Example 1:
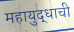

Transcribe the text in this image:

महायुद्धाची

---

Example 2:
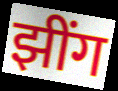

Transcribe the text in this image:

झींग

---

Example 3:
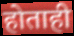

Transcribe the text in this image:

होताही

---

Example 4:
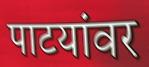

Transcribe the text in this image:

पाटयांवर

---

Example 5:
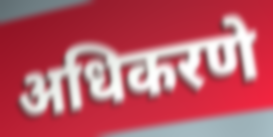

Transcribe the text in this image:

अधिकरणे